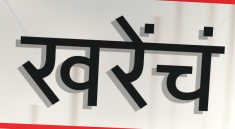
खरेंचं